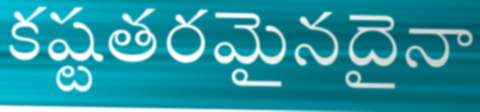
కష్టతరమైనదైనా